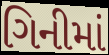
ગિનીમાં